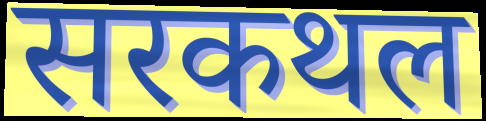
सरकथल